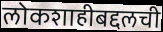
लोकशाहीबद्दलची